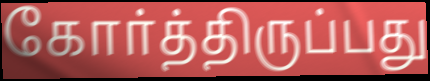
கோர்த்திருப்பது